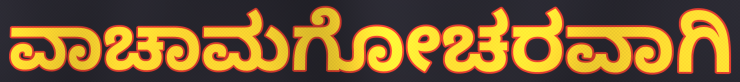
ವಾಚಾಮಗೋಚರವಾಗಿ